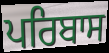
ਪਰਿਬਾਸ